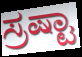
ಸ್ರಷ್ಟಾ